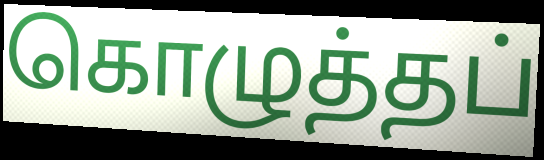
கொழுத்தப்